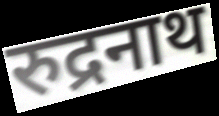
रुद्रनाथ